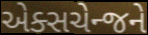
એક્સચેન્જને